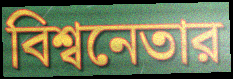
বিশ্বনেতার